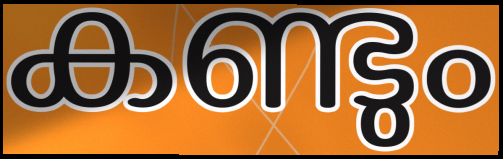
കണ്ടും